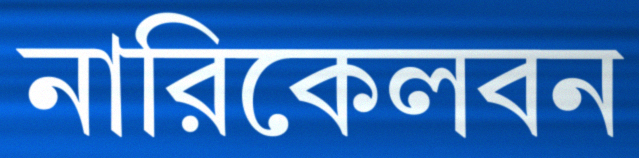
নারিকেলবন